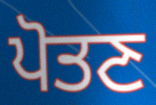
ਪੋਤਣ